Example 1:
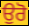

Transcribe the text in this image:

ਉਰੋ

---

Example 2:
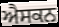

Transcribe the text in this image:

ਐਸਕਨ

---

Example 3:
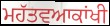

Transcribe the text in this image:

ਮਹੱਤਵਆਕਾਂਖੀ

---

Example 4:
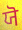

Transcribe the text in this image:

ਯੋ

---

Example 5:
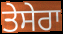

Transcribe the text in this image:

ਤੇਸੇਰਾ